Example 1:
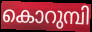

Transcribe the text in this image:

കൊറുമ്പി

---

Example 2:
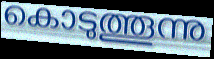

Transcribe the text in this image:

കൊടുത്തൂന്നു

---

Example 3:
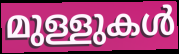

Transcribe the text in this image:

മുള്ളുകൾ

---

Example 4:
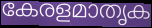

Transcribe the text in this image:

കേരളമാതൃക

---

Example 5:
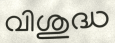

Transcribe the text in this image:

വിശുദ്ധ